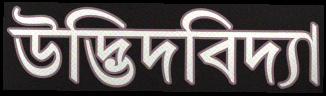
উদ্ভিদবিদ্যা